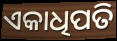
ଏକାଧିପତି